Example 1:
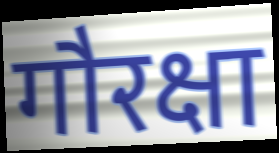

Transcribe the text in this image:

गौरक्षा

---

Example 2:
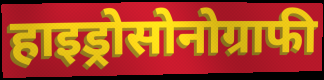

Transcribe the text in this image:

हाइड्रोसोनोग्राफी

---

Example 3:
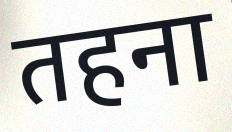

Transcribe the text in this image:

तहना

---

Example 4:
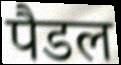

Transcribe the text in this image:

पैडल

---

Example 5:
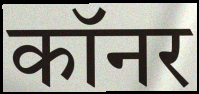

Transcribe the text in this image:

कॉनर